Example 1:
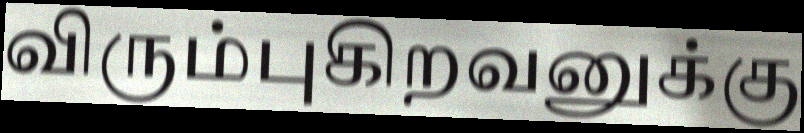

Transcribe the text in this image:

விரும்புகிறவனுக்கு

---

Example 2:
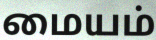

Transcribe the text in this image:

மையம்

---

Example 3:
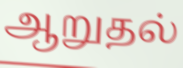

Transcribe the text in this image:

ஆறுதல்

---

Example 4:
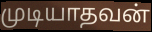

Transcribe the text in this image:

முடியாதவன்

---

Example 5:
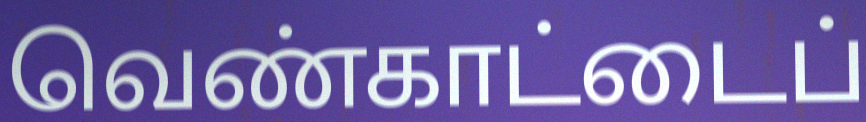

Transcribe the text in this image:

வெண்காட்டைப்